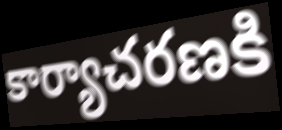
కార్యాచరణకి